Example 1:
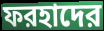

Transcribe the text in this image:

ফরহাদের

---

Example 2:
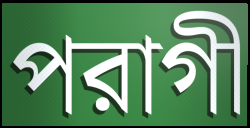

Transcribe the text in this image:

পরাগী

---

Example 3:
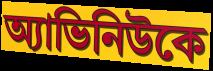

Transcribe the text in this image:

অ্যাভিনিউকে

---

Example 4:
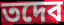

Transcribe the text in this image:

তদেব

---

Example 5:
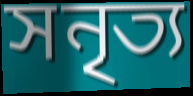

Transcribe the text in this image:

সনৃত্য